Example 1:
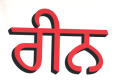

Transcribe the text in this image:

ਰੀਨ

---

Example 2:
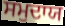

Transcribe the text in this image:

ਸਮੁਦਾਯ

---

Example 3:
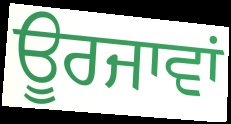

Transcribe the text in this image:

ਊਰਜਾਵਾਂ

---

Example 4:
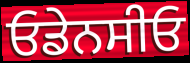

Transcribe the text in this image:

ਓਡੇਨਸੀਓ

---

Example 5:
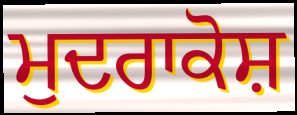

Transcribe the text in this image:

ਮੁਦਰਾਕੋਸ਼